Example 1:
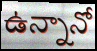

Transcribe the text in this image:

ఉన్నానో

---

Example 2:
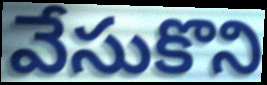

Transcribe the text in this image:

వేసుకొని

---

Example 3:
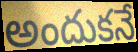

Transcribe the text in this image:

అందుకనే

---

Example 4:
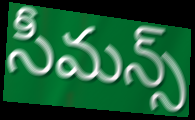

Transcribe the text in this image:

సీమన్స్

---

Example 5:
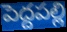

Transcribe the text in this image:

పెద్దపల్లి